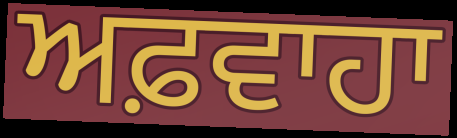
ਅਫ਼ਵਾਹਾ